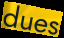
dues